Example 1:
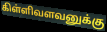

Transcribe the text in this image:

கிள்ளிவளவனுக்கு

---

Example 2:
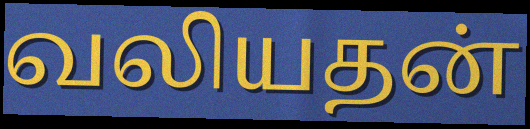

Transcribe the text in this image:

வலியதன்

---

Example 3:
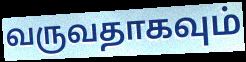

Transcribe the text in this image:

வருவதாகவும்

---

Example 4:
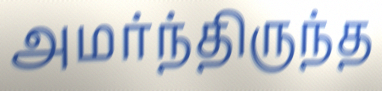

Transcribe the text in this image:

அமர்ந்திருந்த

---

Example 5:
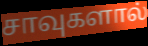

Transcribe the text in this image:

சாவுகளால்